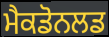
ਮੈਕਡੋਨਲਡ